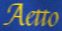
Aetto